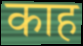
काह